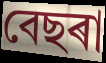
বেছৰা